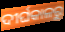
ଦୀର୍ଘକାଳରୁ